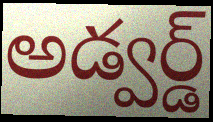
అడ్వర్డ్